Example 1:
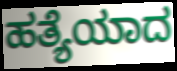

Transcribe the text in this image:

ಹತ್ಯೆಯಾದ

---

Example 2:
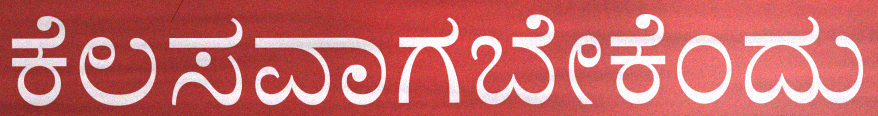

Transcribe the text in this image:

ಕೆಲಸವಾಗಬೇಕೆಂದು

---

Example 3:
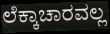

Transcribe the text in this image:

ಲೆಕ್ಕಾಚಾರವಲ್ಲ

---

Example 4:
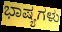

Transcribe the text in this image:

ಭಾಷ್ಯಗಳು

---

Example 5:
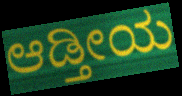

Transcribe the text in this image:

ಆಡ್ತೀಯ